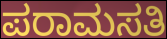
ಪರಾಮಸತಿ